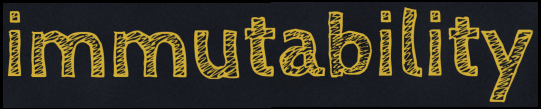
immutability